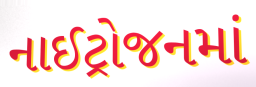
નાઈટ્રોજનમાં